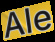
Ale